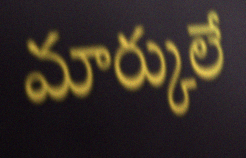
మార్కులే